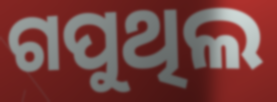
ଗପୁଥିଲ